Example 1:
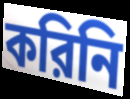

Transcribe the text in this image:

করিনি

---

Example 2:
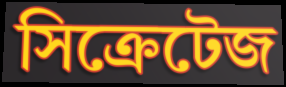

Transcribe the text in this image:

সিক্রেটেজ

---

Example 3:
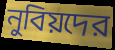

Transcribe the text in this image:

নুবিয়দের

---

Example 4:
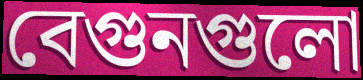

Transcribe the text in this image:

বেগুনগুলো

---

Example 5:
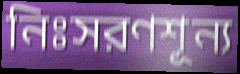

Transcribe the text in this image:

নিঃসরণশূন্য